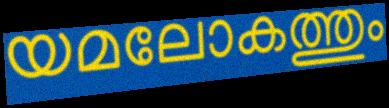
യമലോകത്തും